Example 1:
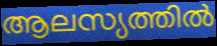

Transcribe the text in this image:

ആലസ്യത്തിൽ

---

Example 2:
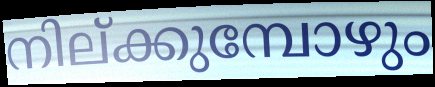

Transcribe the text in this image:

നില്ക്കുമ്പോഴും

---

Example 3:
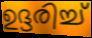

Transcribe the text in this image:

ഉദ്ദരിച്ച്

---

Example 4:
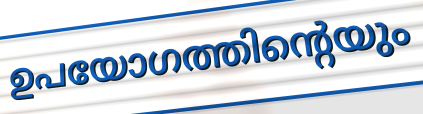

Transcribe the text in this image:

ഉപയോഗത്തിന്റെയും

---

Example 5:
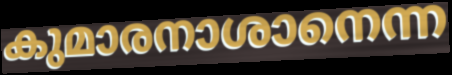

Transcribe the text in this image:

കുമാരനാശാനെന്ന